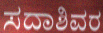
ಸದಾಶಿವರ